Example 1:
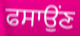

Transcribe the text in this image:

ਫਸਾਉਂਣ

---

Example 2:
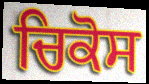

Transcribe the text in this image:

ਚਿਕੋਸ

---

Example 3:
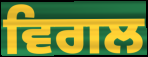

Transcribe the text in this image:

ਵਿਗਲ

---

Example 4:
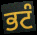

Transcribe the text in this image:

ਭਟੰ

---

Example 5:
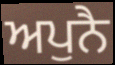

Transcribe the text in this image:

ਅਪੁਨੈ